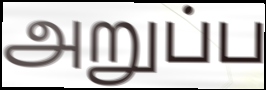
அறுப்ப